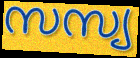
സസ്യ